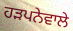
ਹੜਪਨੇਵਾਲੇ